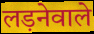
लड़नेवाले